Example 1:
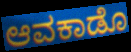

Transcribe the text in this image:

ಆವಕಾಡೊ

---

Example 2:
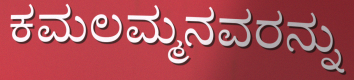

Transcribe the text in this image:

ಕಮಲಮ್ಮನವರನ್ನು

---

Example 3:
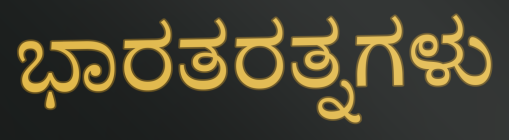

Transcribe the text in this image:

ಭಾರತರತ್ನಗಳು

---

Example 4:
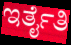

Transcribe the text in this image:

ಇರ್ತೈತಿ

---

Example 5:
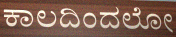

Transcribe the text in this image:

ಕಾಲದಿಂದಲೋ